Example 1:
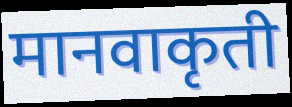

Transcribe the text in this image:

मानवाकृती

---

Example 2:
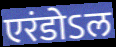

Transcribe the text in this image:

एरंडोऽल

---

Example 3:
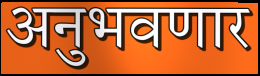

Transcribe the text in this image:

अनुभवणार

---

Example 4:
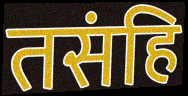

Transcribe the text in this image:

तसंहि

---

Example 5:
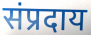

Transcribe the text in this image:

संप्रदाय